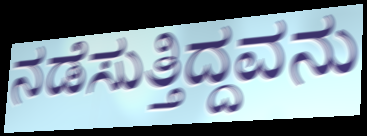
ನಡೆಸುತ್ತಿದ್ದವನು